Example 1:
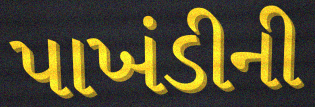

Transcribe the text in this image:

પાખંડીની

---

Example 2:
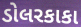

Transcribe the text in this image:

ડોલરકાકા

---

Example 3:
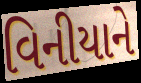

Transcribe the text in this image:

વિનીયાને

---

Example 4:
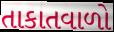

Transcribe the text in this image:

તાકાતવાળો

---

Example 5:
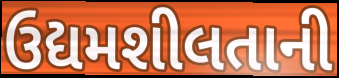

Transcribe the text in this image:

ઉદ્યમશીલતાની